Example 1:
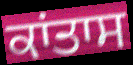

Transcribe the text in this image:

ਕਾਂਤਾਸ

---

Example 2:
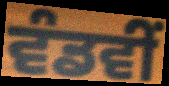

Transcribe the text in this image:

ਵੰਡਵੀਂ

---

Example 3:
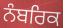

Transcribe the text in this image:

ਨੰਬਰਿਕ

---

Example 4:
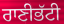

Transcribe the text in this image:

ਰਾਣੀਭੱਟੀ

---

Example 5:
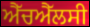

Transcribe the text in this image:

ਐੱਚਐੱਲਸੀ